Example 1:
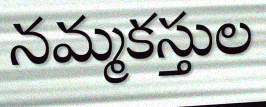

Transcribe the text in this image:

నమ్మకస్తుల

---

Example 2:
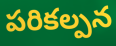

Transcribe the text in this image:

పరికల్పన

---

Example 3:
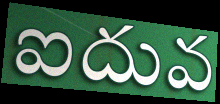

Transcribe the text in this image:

ఐదువ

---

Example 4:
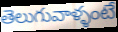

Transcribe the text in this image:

తెలుగువాళ్ళంటే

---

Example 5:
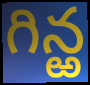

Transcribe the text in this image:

గిన్ఱ